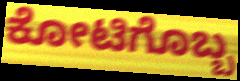
ಕೋಟಿಗೊಬ್ಬ